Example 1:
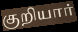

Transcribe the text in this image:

குறியார்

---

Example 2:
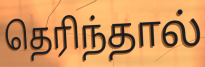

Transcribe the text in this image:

தெரிந்தால்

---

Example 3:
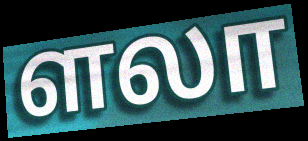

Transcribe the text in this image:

ளலா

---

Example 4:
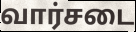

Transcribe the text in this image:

வார்சடை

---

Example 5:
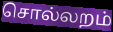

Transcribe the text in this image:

சொல்லறம்